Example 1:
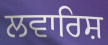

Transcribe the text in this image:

ਲਵਾਰਿਸ਼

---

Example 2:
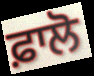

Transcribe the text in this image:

ਫ਼ਾਲੋ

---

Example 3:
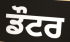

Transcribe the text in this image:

ਡੌਟਰ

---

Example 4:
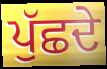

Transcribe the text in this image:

ਪੁੱਛਦੇ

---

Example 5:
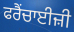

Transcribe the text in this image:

ਫਰੈਂਚਾਈਜ਼ੀ